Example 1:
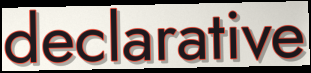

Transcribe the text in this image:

declarative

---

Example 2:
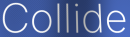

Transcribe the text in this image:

Collide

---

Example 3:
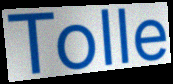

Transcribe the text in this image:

Tolle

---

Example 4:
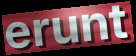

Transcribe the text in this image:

erunt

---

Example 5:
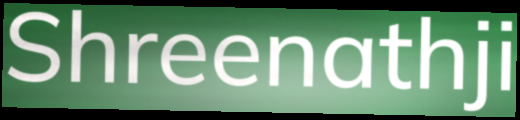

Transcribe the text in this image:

Shreenathji